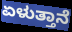
ಏಳುತ್ತಾನೆ